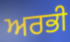
ਅਰਭੀ